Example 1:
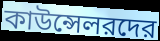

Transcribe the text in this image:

কাউন্সেলরদের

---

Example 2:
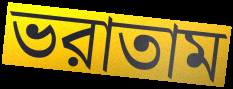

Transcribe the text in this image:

ভরাতাম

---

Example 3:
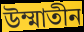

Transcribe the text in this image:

উম্মাতীন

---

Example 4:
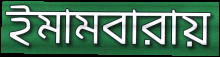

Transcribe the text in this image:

ইমামবারায়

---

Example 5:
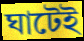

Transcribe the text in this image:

ঘাটেই